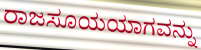
ರಾಜಸೂಯಯಾಗವನ್ನು